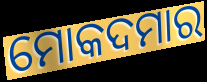
ମୋକଦମାର